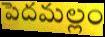
పెదమల్లం